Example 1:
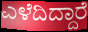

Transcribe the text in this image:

ಎಳೆದಿದ್ದಾರೆ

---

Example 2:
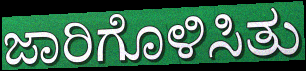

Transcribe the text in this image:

ಜಾರಿಗೊಳಿಸಿತು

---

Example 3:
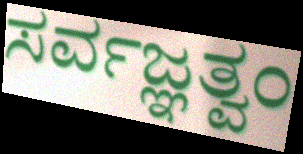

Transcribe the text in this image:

ಸರ್ವಜ್ಞತ್ವಂ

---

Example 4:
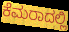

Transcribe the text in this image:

ಕೆಮರಾದಲ್ಲಿ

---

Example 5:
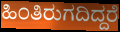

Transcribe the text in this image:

ಹಿಂತಿರುಗದಿದ್ದರೆ